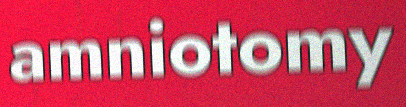
amniotomy